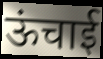
ऊंचाई